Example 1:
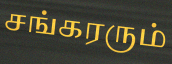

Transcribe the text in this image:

சங்கரரும்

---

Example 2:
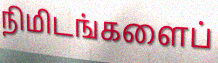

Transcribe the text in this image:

நிமிடங்களைப்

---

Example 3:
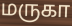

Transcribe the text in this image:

மருகா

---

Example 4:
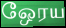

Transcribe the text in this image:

ஒேரய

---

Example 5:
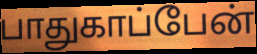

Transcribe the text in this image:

பாதுகாப்பேன்